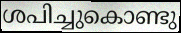
ശപിച്ചുകൊണ്ടു